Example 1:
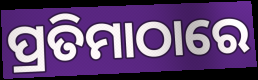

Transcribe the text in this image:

ପ୍ରତିମାଠାରେ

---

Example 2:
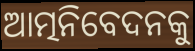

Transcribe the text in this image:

ଆତ୍ମନିବେଦନକୁ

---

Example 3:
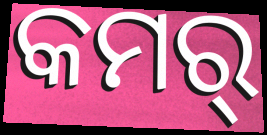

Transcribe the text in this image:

କମର୍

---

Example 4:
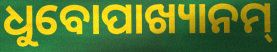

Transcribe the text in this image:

ଧୁବୋପାଖ୍ୟାନମ୍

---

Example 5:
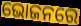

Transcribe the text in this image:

ଭୋଜନରେ